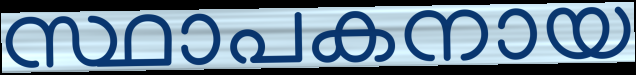
സ്ഥാപകനായ